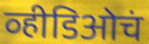
व्हीडिओचं